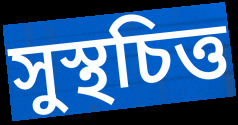
সুস্থচিত্ত